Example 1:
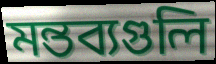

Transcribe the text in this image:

মন্তব্যগুলি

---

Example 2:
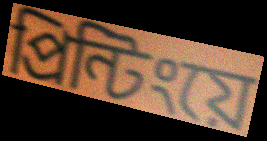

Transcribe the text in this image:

প্রিন্টিংয়ে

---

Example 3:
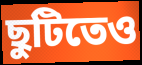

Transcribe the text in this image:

ছুটিতেও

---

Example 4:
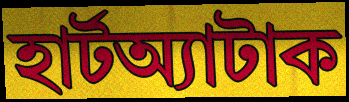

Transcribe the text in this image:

হার্টঅ্যাটাক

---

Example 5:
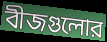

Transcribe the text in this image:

বীজগুলোর